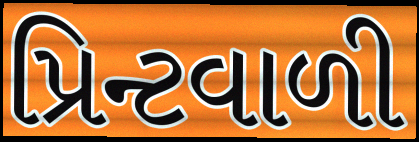
પ્રિન્ટવાળી